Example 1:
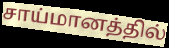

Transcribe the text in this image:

சாய்மானத்தில்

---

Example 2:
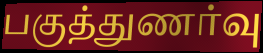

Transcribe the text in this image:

பகுத்துணர்வு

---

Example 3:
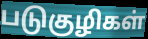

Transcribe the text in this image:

படுகுழிகள்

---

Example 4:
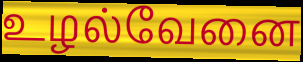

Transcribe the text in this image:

உழல்வேனை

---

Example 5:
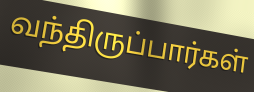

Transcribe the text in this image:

வந்திருப்பார்கள்